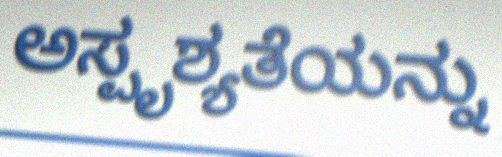
ಅಸ್ಪೃಶ್ಯತೆಯನ್ನು